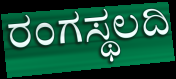
ರಂಗಸ್ಥಲದಿ